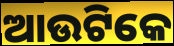
ଆଉଟିକେ